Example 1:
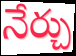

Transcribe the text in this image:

నేర్చు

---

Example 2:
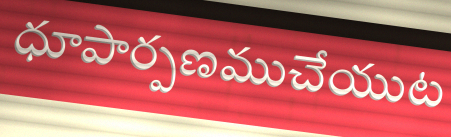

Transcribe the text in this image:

ధూపార్పణముచేయుట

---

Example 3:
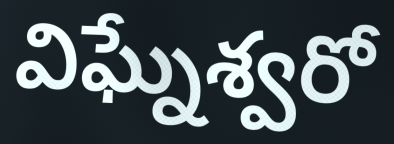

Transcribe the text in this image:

విఘ్నేశ్వరో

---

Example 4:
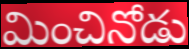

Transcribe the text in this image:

మించినోడు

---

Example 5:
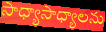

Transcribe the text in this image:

సాధ్యాసాధ్యాలను